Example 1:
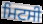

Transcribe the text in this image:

ਮਿਟਸੀ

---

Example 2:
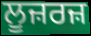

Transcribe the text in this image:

ਲੂਜ਼ਰਜ਼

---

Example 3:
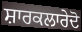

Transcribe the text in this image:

ਸ਼ਾਰਕਲਾਰੇਦੋ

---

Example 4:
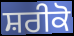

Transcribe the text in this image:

ਸ਼ਰੀਕੋ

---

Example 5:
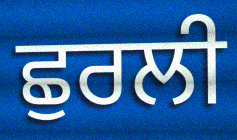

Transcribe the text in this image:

ਛੁਰਲੀ